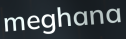
meghana